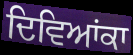
ਦਿਵਿਆਂਕਾ